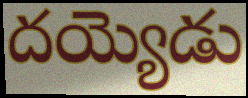
దయ్యెడు